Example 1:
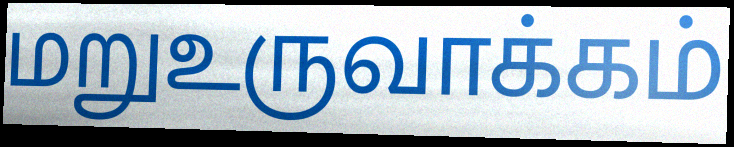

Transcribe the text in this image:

மறுஉருவாக்கம்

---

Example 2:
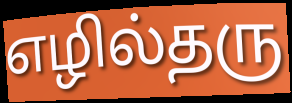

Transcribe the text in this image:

எழில்தரு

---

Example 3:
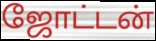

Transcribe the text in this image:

ஜோட்டன்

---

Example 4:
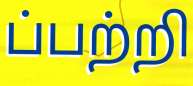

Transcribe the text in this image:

ப்பற்றி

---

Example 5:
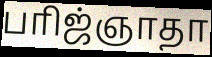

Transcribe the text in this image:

பரிஜ்ஞாதா